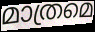
മാത്രമെ